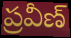
ప్రవీణ్